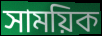
সাময়িক